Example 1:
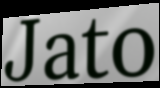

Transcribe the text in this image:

Jato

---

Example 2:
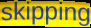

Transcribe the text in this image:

skipping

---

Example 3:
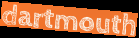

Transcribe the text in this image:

dartmouth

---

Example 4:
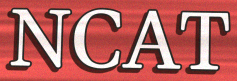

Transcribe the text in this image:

NCAT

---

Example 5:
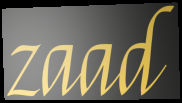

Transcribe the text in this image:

zaad